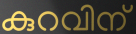
കുറവിന്